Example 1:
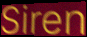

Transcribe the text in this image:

Siren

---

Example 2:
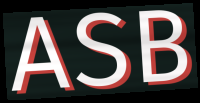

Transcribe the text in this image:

ASB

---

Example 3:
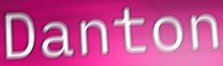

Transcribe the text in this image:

Danton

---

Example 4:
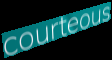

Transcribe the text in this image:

courteous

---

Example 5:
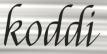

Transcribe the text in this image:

koddi